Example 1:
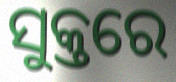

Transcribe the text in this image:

ସୁକ୍ତରେ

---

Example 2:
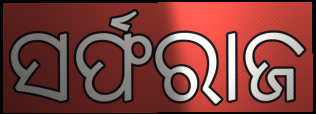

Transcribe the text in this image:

ସର୍ଫରାଜ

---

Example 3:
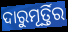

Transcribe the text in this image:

ଦାରୁମୂର୍ତ୍ତିର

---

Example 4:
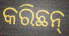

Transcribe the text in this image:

କରିଛନ୍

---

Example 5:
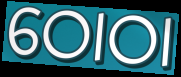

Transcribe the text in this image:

ଠୋଠା